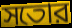
সতোর